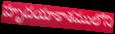
హృదయాకాశములోని